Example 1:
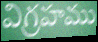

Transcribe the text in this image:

విగ్రహము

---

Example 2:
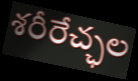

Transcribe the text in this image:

శరీరేచ్ఛల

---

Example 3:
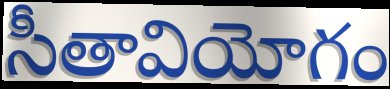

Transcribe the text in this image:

సీతావియోగం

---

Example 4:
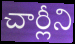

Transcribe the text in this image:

చార్లీని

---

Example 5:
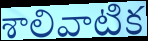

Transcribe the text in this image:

శాలివాటిక